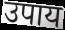
उपाय